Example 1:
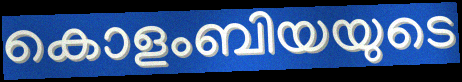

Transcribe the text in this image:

കൊളംബിയയുടെ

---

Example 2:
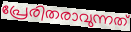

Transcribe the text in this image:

പ്രേരിതരാവുന്നത്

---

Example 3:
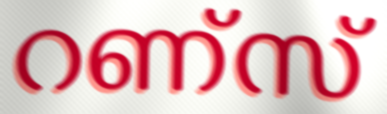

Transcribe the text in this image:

റണ്സ്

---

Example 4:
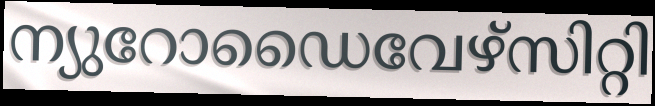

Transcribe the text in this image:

ന്യുറോഡൈവേഴ്സിറ്റി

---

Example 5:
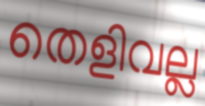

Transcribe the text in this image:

തെളിവല്ല